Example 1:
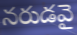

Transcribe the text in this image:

నరుడవై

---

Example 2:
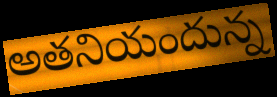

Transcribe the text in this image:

అతనియందున్న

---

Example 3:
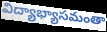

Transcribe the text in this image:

విద్యాభ్యాసమంతా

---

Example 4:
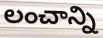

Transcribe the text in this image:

లంచాన్ని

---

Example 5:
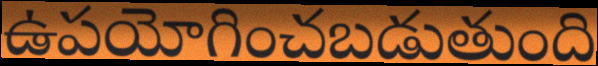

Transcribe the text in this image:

ఉపయోగించబడుతుంది